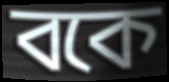
বকে